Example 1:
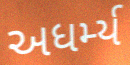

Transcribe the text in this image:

અધર્મ્ય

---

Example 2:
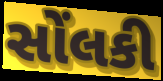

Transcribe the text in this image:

સોંલકી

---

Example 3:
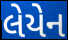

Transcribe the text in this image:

લેયેન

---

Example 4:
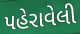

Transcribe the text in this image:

પહેરાવેલી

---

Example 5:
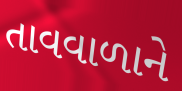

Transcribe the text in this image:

તાવવાળાને